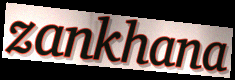
zankhana